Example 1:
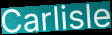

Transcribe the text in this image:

Carlisle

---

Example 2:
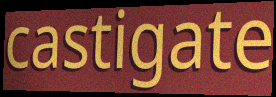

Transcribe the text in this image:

castigate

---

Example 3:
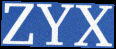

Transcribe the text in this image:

ZYX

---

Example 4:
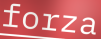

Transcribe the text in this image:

forza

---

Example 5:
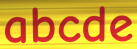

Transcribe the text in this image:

abcde